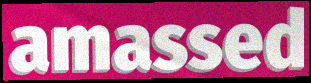
amassed